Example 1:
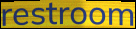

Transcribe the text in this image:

restroom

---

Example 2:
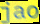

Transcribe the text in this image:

jao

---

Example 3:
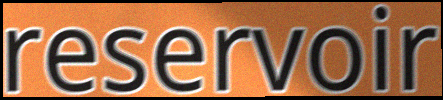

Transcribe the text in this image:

reservoir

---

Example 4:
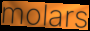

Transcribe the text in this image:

molars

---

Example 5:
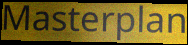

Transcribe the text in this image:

Masterplan